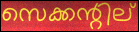
സെക്കന്റില്